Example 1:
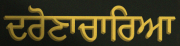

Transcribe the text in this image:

ਦਰੋਣਾਚਾਰਿਆ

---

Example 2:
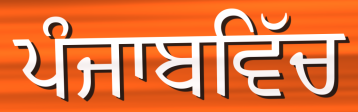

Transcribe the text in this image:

ਪੰਜਾਬਵਿੱਚ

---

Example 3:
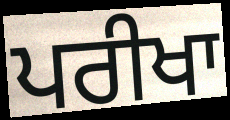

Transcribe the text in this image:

ਪਰੀਖਾ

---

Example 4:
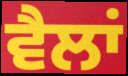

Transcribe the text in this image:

ਵੈਲਾਂ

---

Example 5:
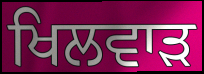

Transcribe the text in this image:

ਖਿਲਵਾੜ